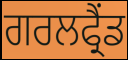
ਗਰਲਫ੍ਰੈਂਡ